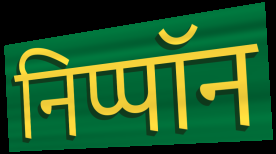
निप्पॉन